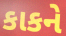
કાકને